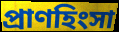
প্রাণহিংসা